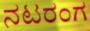
ನಟರಂಗ